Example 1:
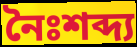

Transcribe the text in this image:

নৈঃশব্দ্য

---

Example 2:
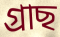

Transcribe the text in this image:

গ্ৰাছ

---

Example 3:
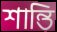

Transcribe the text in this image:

শান্তি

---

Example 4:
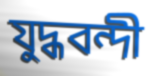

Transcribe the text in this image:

যুদ্ধবন্দী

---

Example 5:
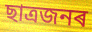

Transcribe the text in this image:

ছাত্ৰজনৰ